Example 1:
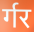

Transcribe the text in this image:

र्गर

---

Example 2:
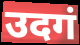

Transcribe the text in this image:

उदगं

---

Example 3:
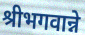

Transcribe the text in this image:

श्रीभगवान्ने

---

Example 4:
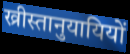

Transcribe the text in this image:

ख्रीस्तानुयायियों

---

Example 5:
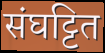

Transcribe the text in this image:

संघट्टित